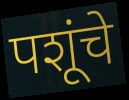
पशूंचे